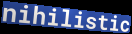
nihilistic